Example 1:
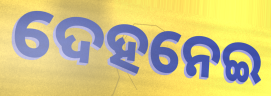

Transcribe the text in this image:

ଦେହନେଇ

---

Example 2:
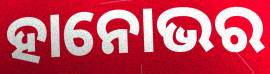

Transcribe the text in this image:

ହାନୋଭର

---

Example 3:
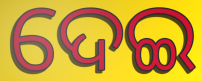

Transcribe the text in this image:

ଦେଇ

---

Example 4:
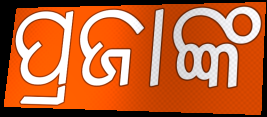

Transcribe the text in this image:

ପ୍ରଜାଙ୍କ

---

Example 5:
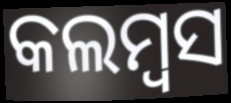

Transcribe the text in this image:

କଲମ୍ବସ